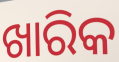
ଖାରିକ